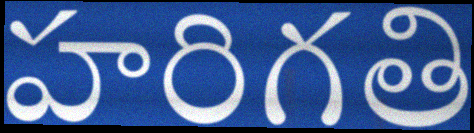
హరిగతి